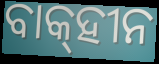
ବାକ୍‌ହୀନ